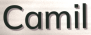
Camil